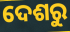
ଦେଶରୁ